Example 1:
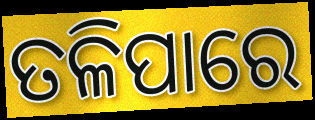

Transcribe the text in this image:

ତଳିପାରେ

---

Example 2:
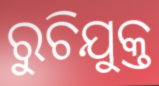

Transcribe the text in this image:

ରୁଚିଯୁକ୍ତ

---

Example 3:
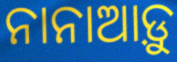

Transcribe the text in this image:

ନାନାଆଡ଼ୁ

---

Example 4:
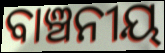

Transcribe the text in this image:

ବାଞ୍ଚନୀୟ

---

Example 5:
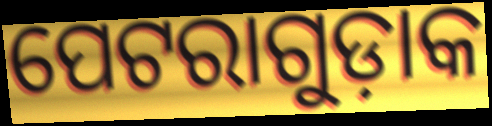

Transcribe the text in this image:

ପେଟରାଗୁଡ଼ାକ